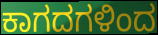
ಕಾಗದಗಳಿಂದ